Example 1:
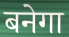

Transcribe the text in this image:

बनेगा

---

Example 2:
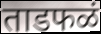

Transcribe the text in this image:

ताडफळं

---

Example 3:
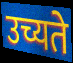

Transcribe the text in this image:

उच्यते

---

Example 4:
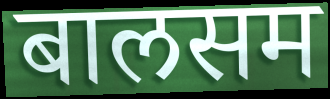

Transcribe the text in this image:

बालसम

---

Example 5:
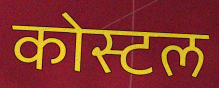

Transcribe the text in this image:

कोस्टल